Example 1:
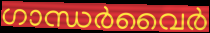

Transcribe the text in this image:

ഗാന്ധർവൈർ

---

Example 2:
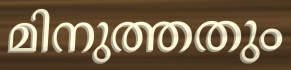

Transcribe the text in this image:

മിനുത്തതും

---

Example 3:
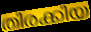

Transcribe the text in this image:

തിരക്കിയ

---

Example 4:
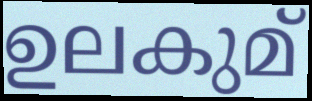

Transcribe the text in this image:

ഉലകുമ്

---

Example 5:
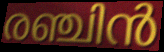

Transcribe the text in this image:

രഞ്ചിൻ